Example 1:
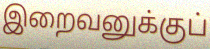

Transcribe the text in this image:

இறைவனுக்குப்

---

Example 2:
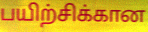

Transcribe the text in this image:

பயிற்சிக்கான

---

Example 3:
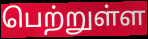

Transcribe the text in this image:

பெற்றுள்ள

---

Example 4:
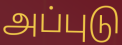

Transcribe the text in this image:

அப்புடு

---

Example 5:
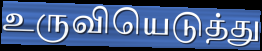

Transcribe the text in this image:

உருவியெடுத்து